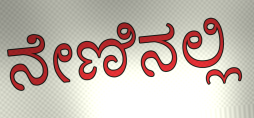
ನೇಣಿನಲ್ಲಿ